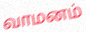
வாமனம்